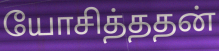
யோசித்ததன்